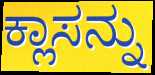
ಕ್ಲಾಸನ್ನು